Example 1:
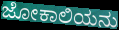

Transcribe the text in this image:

ಜೋಕಾಲಿಯನು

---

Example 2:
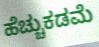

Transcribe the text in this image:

ಹೆಚ್ಚುಕಡಮೆ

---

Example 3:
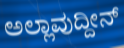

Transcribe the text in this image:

ಅಲ್ಲಾವುದ್ದೀನ್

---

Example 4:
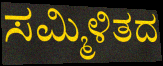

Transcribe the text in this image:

ಸಮ್ಮಿಳಿತದ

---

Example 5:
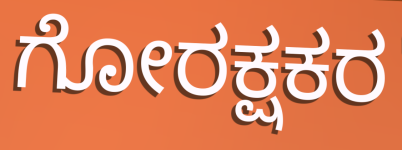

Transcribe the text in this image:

ಗೋರಕ್ಷಕರ